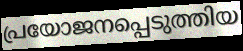
പ്രയോജനപ്പെടുത്തിയ